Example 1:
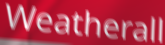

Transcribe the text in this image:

Weatherall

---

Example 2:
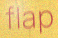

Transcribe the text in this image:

flap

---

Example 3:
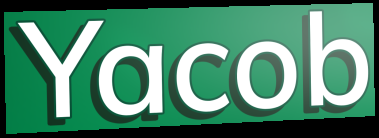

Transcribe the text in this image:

Yacob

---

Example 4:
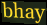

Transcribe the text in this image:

bhay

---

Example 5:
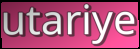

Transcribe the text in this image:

utariye